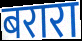
बरारा